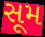
સૂમ